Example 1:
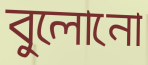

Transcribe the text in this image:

বুলোনো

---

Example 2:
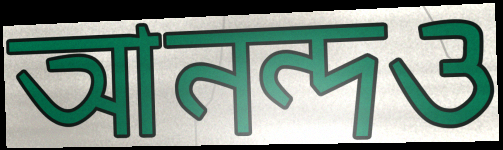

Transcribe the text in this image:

আনন্দও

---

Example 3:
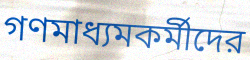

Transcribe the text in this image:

গণমাধ্যমকর্মীদের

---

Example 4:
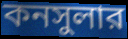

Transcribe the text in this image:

কনসুলার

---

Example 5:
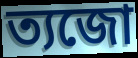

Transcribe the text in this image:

ত্যজো